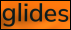
glides